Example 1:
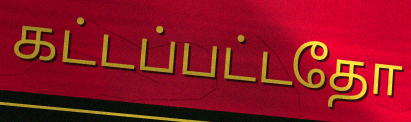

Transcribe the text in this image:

கட்டப்பட்டதோ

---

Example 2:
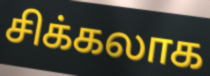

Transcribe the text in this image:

சிக்கலாக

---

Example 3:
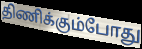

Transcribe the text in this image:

திணிக்கும்போது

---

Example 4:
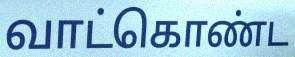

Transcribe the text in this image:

வாட்கொண்ட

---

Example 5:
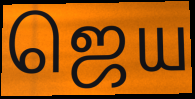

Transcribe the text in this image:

ஜெய